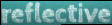
reflective